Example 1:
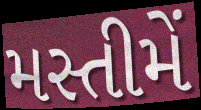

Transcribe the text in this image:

મસ્તીમેં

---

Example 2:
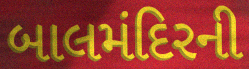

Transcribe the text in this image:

બાલમંદિરની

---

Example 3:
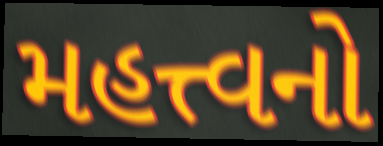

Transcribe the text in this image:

મહત્ત્વનો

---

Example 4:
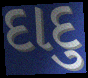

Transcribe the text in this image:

દાદુ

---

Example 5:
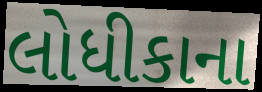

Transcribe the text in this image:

લોધીકાના